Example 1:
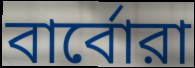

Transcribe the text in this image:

বার্বোরা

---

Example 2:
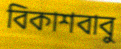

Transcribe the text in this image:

বিকাশবাবু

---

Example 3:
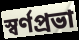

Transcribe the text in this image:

স্বর্ণপ্রভা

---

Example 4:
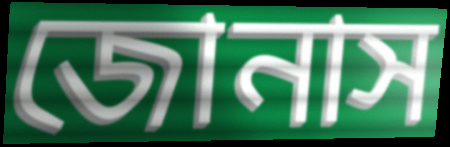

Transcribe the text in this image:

জোনাস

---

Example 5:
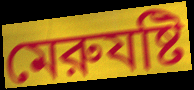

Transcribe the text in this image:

মেরুযষ্টি